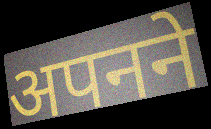
अपनने